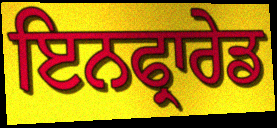
ਇਨਫ੍ਰਾਰੇਡ